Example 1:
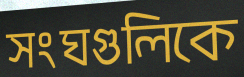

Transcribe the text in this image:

সংঘগুলিকে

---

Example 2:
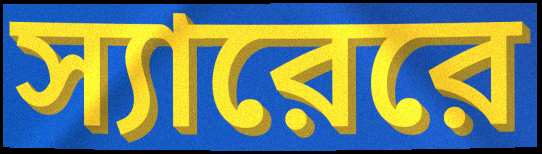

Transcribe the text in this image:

স্যারেরে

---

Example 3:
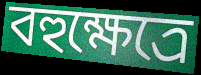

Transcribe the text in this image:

বহুক্ষেত্রে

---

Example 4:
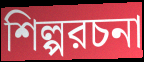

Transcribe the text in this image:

শিল্পরচনা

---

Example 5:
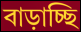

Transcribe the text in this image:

বাড়াচ্ছি